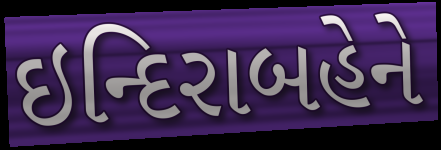
ઇન્દિરાબહેને